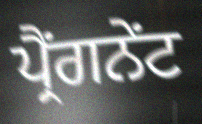
ਪ੍ਰੈਂਗਨੇਂਟ